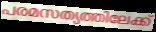
പരമസത്യത്തിലേക്ക്